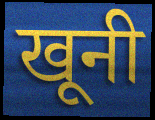
खूनी